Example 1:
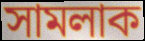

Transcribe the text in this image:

সামলাক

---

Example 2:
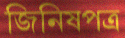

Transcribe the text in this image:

জিনিষপত্র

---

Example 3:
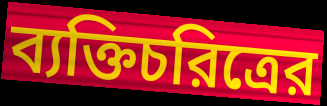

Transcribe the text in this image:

ব্যক্তিচরিত্রের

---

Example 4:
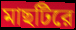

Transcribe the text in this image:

মাছটিরে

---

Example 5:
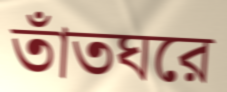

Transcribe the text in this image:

তাঁতঘরে